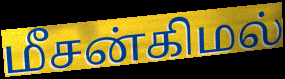
மீசன்கிமல்